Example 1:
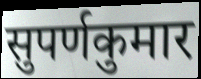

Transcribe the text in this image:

सुपर्णकुमार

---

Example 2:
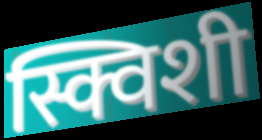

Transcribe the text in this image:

स्क्विशी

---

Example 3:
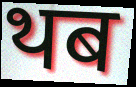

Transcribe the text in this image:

थब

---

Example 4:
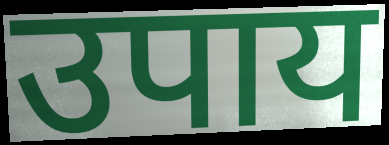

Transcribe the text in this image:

उपाय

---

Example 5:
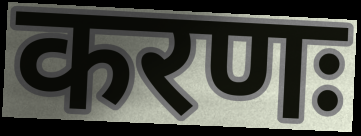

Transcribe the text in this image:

करणः